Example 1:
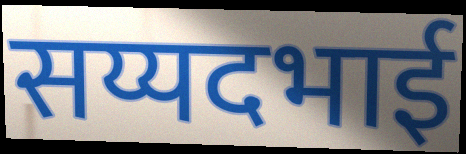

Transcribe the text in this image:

सय्यदभाई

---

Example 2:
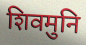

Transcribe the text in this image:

शिवमुनि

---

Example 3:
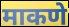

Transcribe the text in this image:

माकणे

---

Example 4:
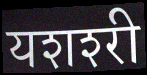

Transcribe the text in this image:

यशश्री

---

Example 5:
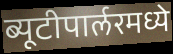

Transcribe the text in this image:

ब्यूटीपार्लरमध्ये